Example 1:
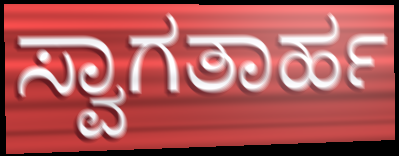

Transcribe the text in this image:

ಸ್ವಾಗತಾರ್ಹ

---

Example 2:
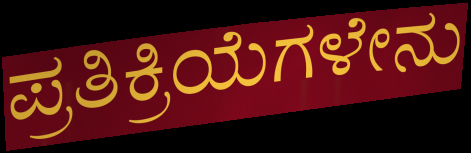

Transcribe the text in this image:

ಪ್ರತಿಕ್ರಿಯೆಗಳೇನು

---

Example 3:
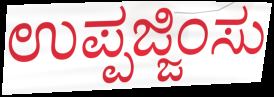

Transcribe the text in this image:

ಉಪ್ಪಜ್ಜಿಂಸು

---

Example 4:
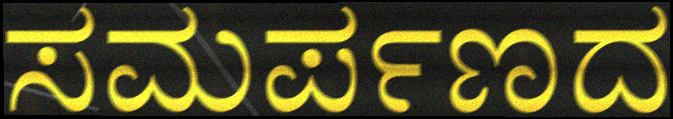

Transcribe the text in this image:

ಸಮರ್ಪಣದ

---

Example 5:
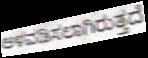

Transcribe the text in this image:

ಅಳವಡಿಸಲಾಗಿರುತ್ತದೆ